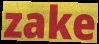
zake